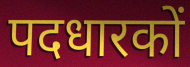
पदधारकों